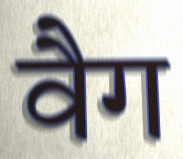
वैग